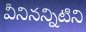
వీనినన్నిటిని